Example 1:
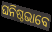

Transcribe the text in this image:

ଘନିଷ୍ଠଭାବେ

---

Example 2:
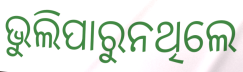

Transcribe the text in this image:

ଭୁଲିପାରୁନଥିଲେ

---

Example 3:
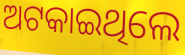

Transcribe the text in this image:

ଅଟକାଇଥିଲେ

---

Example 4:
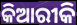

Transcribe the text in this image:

କିଆରୀକି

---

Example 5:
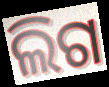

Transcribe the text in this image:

ଲିଗ